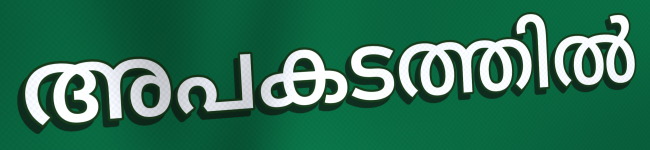
അപകടത്തിൽ